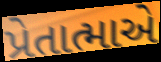
પ્રેતાત્માએ